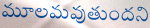
మూలమవుతుందని